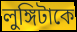
লুঙ্গিটাকে